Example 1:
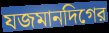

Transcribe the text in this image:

যজমানদিগের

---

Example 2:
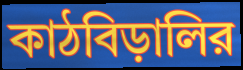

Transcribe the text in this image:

কাঠবিড়ালির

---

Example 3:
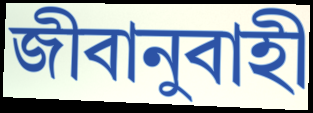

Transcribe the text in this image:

জীবানুবাহী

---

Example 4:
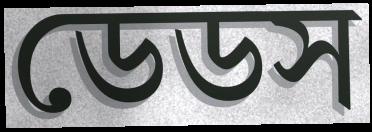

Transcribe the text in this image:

ডেডস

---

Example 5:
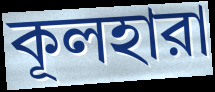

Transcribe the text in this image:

কূলহারা